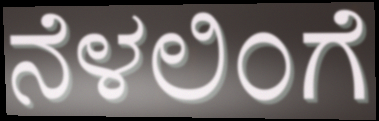
ನೆಳಲಿಂಗೆ